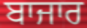
ਬਾਜਾਰ